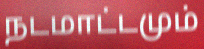
நடமாட்டமும்